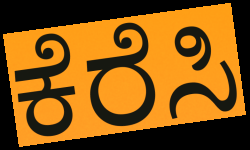
ಕೆರೆಸಿ